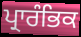
ਪ੍ਰਾਰੰਭਿਕ